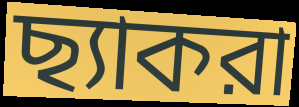
ছ্যাকরা